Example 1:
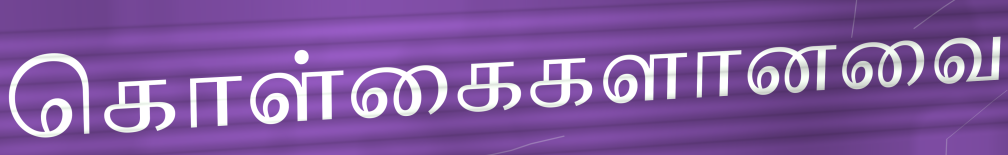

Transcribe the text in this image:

கொள்கைகளானவை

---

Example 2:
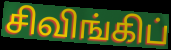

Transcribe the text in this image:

சிவிங்கிப்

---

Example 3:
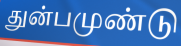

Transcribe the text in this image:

துன்பமுண்டு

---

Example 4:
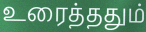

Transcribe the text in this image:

உரைத்ததும்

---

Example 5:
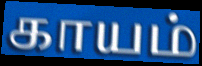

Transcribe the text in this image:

காயம்